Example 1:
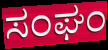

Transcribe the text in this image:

ಸಂಘಂ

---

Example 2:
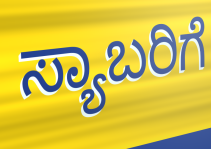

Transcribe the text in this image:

ಸ್ಯಾಬರಿಗೆ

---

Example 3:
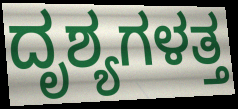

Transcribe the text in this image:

ದೃಶ್ಯಗಳತ್ತ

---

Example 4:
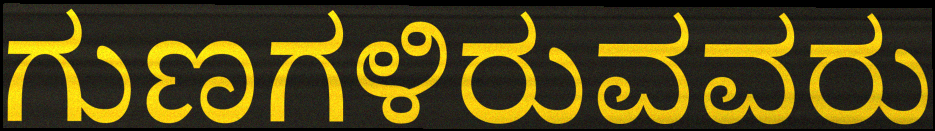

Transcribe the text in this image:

ಗುಣಗಳಿರುವವರು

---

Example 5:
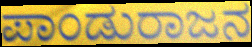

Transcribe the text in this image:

ಪಾಂಡುರಾಜನ